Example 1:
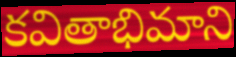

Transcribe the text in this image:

కవితాభిమాని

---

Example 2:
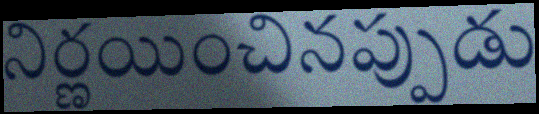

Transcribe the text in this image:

నిర్ణయించినప్పుడు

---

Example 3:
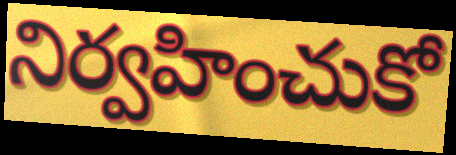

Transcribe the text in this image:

నిర్వహించుకో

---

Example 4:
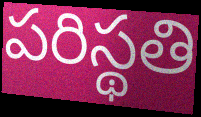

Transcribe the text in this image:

పరిస్థతి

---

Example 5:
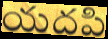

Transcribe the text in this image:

యదపి